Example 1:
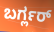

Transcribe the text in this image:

ಬರ್ಗ್ಲರ್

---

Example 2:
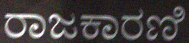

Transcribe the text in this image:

ರಾಜಕಾರಣಿ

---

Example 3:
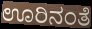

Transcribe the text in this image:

ಊರಿನಂತೆ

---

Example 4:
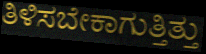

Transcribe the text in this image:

ತಿಳಿಸಬೇಕಾಗುತ್ತಿತ್ತು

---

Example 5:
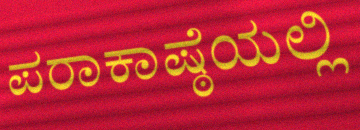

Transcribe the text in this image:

ಪರಾಕಾಷ್ಠೆಯಲ್ಲಿ